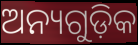
ଅନ୍ୟଗୁଡ଼ିକ